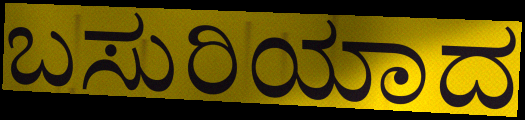
ಬಸುರಿಯಾದ